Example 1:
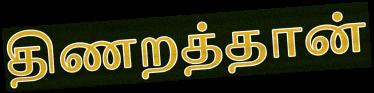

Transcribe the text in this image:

திணறத்தான்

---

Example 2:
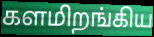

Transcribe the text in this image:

களமிறங்கிய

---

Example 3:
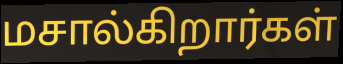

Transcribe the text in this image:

மசால்கிறார்கள்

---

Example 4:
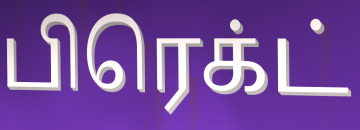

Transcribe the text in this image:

பிரெக்ட்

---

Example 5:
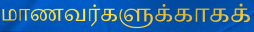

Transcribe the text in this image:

மாணவர்களுக்காகக்